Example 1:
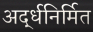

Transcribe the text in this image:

अर्द्धनिर्मित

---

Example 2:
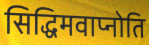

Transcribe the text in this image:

सिद्धिमवाप्नोति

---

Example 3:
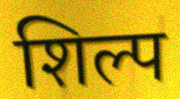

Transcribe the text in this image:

शिल्प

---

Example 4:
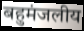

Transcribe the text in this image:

बहुमंजलीय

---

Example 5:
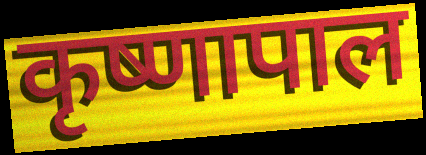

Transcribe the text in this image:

कृष्णापाल